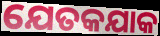
ଯେତକଯାକ